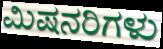
ಮಿಷನರಿಗಳು